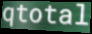
qtotal